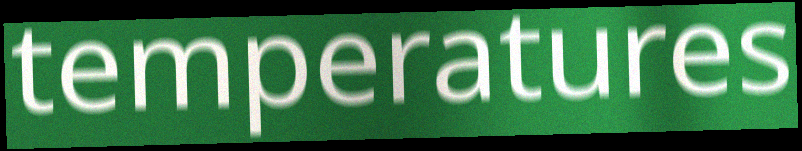
temperatures